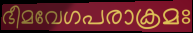
ഭീമവേഗപരാക്രമഃ